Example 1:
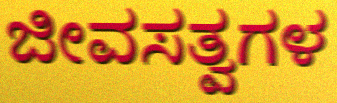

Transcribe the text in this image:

ಜೀವಸತ್ವಗಳ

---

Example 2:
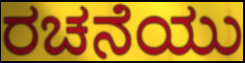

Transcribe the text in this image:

ರಚನೆಯು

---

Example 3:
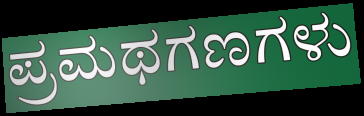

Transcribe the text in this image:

ಪ್ರಮಥಗಣಗಳು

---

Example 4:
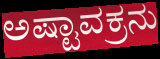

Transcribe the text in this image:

ಅಷ್ಟಾವಕ್ರನು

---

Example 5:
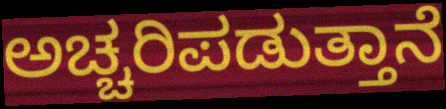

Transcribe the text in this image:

ಅಚ್ಚರಿಪಡುತ್ತಾನೆ